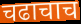
चढाचाच